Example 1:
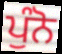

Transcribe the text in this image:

ਪੁੰਨੋ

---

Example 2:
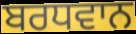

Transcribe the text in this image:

ਬਰਧਵਾਨ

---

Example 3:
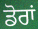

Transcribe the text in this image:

ਡੋਰਾਂ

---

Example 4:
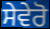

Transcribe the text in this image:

ਸੇਵੇਰੋ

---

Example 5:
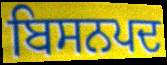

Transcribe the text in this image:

ਬਿਸਨਪਦ